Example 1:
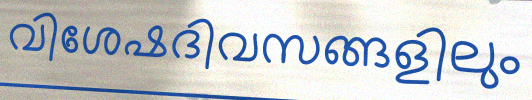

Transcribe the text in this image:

വിശേഷദിവസങ്ങളിലും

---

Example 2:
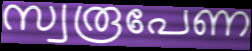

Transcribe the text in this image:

സ്വരൂപേണ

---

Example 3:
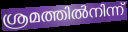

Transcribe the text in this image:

ശ്രമത്തിൽനിന്ന്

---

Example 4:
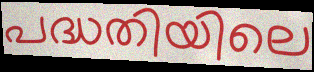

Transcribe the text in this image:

പദ്ധതിയിലെ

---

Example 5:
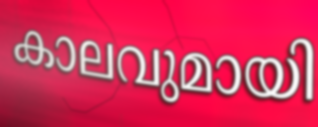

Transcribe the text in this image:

കാലവുമായി